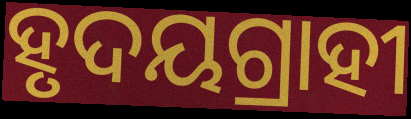
ହୃଦୟଗ୍ରାହୀ